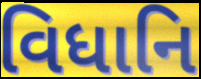
વિધાનિ